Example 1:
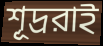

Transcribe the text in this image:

শূদ্ররাই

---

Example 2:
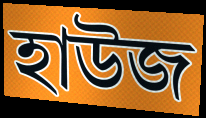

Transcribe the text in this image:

হাউজ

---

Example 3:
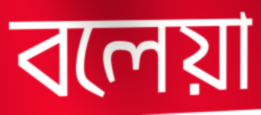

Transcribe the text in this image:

বলেয়া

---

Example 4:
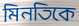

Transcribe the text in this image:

মিনতিকে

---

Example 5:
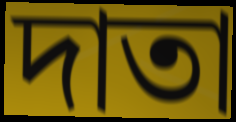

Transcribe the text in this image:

দাতা